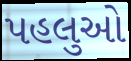
પહલુઓ